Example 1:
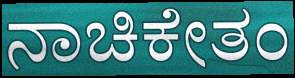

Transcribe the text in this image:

ನಾಚಿಕೇತಂ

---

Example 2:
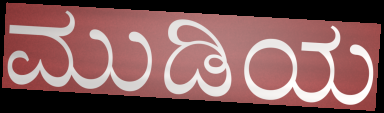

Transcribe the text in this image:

ಮುಡಿಯ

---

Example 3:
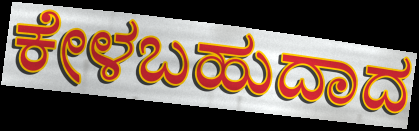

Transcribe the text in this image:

ಕೇಳಬಹುದಾದ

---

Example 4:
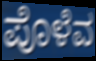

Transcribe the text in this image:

ಪೊಳೆವ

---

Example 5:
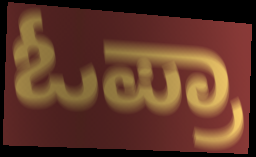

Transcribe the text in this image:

ಓಪ್ರಾ